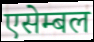
एसेम्बल